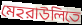
মেহরাউলিতে